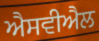
ਐਸਵੀਐਲ